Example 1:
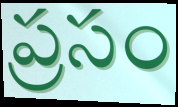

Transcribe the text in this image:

ప్రసం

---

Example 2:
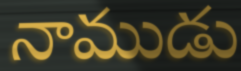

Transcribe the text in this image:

నాముడు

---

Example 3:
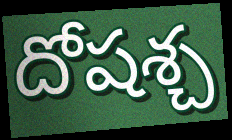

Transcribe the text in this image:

దోషశ్చ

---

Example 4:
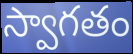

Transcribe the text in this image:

స్వాగతం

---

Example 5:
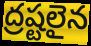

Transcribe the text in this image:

ద్రష్టలైన